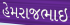
હેમરાજભાઇ